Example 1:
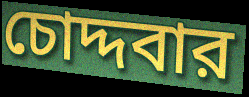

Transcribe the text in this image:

চোদ্দবার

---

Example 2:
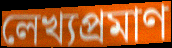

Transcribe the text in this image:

লেখ্যপ্রমাণ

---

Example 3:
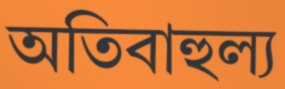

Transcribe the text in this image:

অতিবাহুল্য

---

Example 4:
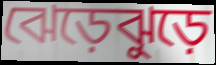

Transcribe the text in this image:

ঝেড়েঝুড়ে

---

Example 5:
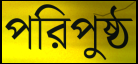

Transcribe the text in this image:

পরিপুষ্ঠ